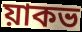
য়াকভ